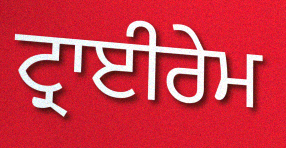
ਟ੍ਰਾਈਰੇਮ